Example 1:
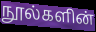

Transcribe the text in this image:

நூல்களின்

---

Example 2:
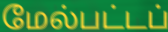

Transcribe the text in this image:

மேல்பட்டப்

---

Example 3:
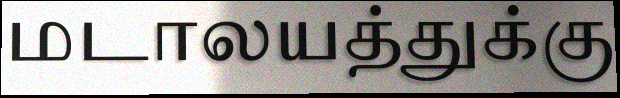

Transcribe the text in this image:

மடாலயத்துக்கு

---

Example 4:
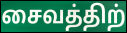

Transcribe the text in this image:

சைவத்திற்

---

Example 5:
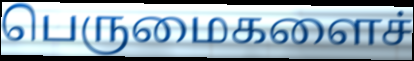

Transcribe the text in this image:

பெருமைகளைச்